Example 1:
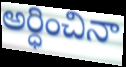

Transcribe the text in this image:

అర్ధించినా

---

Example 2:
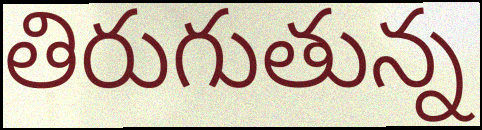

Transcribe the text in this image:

తిరుగుతున్న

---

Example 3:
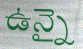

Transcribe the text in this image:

ఉన్నై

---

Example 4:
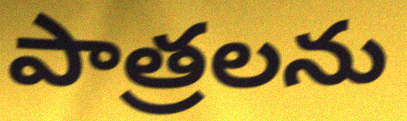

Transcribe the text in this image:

పాత్రలను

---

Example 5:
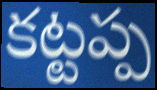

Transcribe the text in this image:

కట్టప్ప